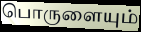
பொருளையும்